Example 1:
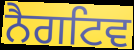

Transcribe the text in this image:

ਨੈਗਟਿਵ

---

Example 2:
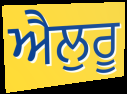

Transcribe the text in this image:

ਐਲੁਰੂ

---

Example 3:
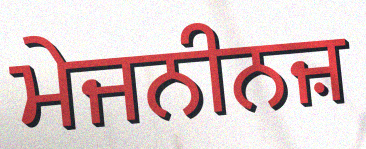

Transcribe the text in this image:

ਮੇਜਨੀਨਜ਼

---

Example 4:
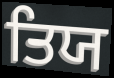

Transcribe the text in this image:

ਤਿਯ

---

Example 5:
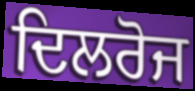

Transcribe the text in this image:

ਦਿਲਰੋਜ